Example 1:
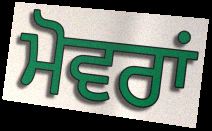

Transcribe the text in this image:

ਮੋਵਰਾਂ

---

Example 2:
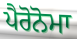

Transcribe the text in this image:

ਪੈਰੋਨੋਮਾ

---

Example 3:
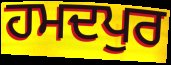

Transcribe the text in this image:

ਹਮਦਪੁਰ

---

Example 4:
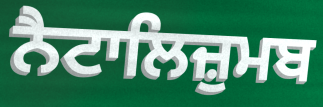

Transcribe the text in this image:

ਨੈਟਾਲਿਜ਼ੁਮਬ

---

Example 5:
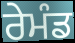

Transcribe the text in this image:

ਰੇਮੰਡ